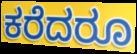
ಕರೆದರೂ